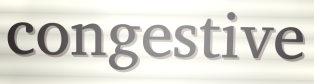
congestive